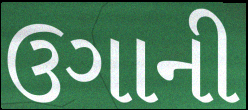
ઉગાની